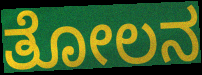
ತೋಲನ